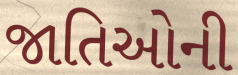
જાતિઓની